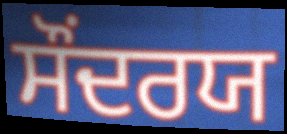
ਸੌਂਦਰਯ